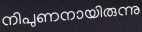
നിപുണനായിരുന്നു